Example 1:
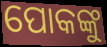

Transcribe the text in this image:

ପୋକଙ୍କୁ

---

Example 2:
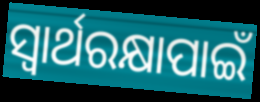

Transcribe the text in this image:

ସ୍ୱାର୍ଥରକ୍ଷାପାଇଁ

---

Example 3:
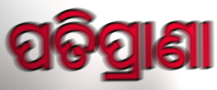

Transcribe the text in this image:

ପତିପ୍ରାଣା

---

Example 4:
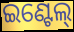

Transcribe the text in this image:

ଇଣ୍ଟେଲ୍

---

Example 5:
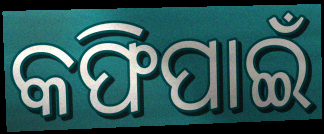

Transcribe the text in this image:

କଫିପାଇଁ